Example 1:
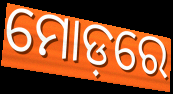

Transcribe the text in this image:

ମୋଡ଼ରେ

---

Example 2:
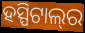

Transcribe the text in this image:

ହସ୍ପିଟାଲ୍‌ର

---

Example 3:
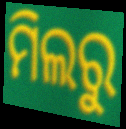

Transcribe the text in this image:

ମିଲରୁ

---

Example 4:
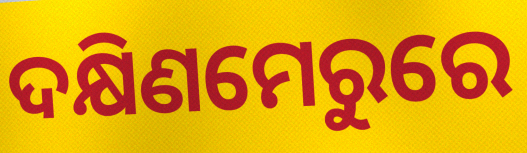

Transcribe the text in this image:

ଦକ୍ଷିଣମେରୁରେ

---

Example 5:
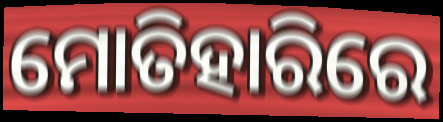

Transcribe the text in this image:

ମୋତିହାରିରେ